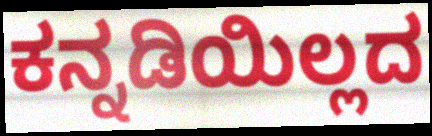
ಕನ್ನಡಿಯಿಲ್ಲದ